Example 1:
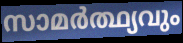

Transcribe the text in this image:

സാമർത്ഥ്യവും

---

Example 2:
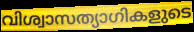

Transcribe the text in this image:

വിശ്വാസത്യാഗികളുടെ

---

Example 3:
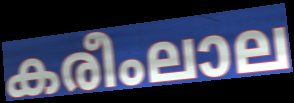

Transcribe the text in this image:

കരീംലാല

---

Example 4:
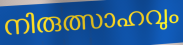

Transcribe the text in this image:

നിരുത്സാഹവും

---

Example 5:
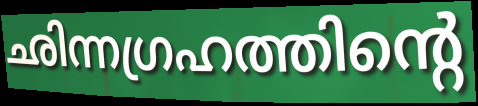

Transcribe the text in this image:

ഛിന്നഗ്രഹത്തിന്റെ